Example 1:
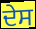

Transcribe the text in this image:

ਦੇਸ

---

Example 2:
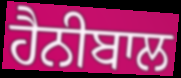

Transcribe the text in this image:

ਹੈਨੀਬਾਲ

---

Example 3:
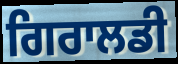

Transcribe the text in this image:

ਗਿਰਾਲਡੀ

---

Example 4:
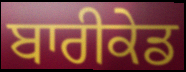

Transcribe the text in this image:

ਬਾਰੀਕੇਡ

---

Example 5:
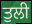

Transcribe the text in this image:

ਤੁਲੀ